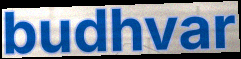
budhvar